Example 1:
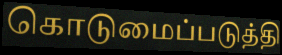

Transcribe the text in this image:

கொடுமைப்படுத்தி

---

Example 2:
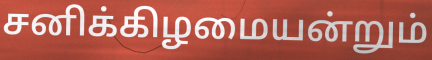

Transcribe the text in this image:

சனிக்கிழமையன்றும்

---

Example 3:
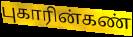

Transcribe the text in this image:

புகாரின்கண்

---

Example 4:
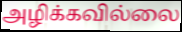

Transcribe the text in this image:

அழிக்கவில்லை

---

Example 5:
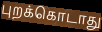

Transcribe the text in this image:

புறக்கொடாது